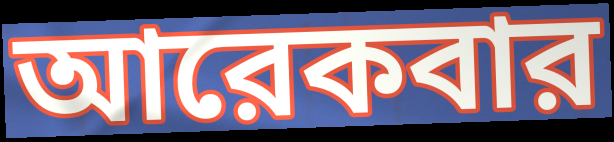
আরেকবার